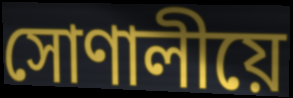
সোণালীয়ে